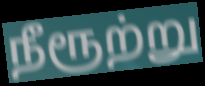
நீரூற்று